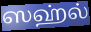
ஸஹ்ல்